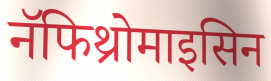
नॅफिथ्रोमाइसिन